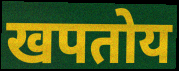
खपतोय